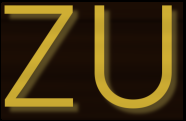
ZU